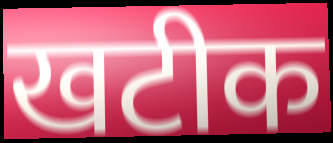
खटीक